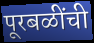
पूरबळींची